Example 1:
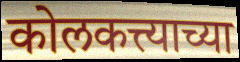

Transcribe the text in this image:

कोलकत्त्याच्या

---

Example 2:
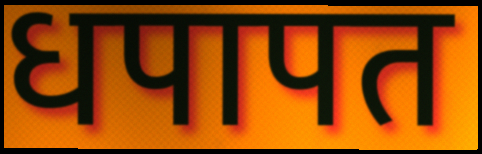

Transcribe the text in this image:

धपापत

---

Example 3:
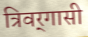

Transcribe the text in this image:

त्रिवर्गासी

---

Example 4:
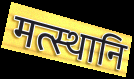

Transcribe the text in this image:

मत्स्थानि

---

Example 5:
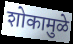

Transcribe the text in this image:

शोकामुळे